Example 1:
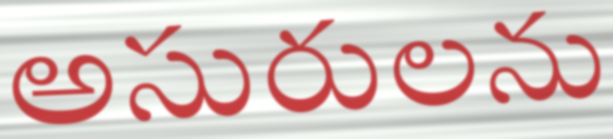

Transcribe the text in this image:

అసురులను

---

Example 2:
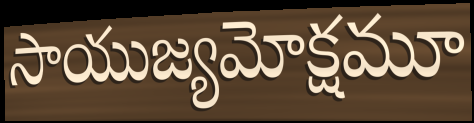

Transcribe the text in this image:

సాయుజ్యమోక్షమూ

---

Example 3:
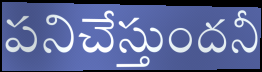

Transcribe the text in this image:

పనిచేస్తుందనీ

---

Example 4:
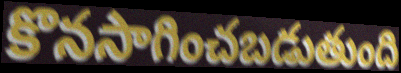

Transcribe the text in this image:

కొనసాగించబడుతుంది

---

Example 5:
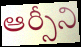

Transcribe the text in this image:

ఆర్సీని